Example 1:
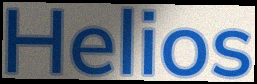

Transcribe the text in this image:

Helios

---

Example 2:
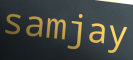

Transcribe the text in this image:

samjay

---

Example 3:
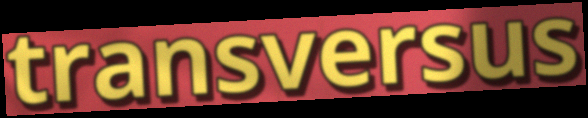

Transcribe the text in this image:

transversus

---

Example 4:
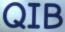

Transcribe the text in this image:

QIB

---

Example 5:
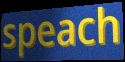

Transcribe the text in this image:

speach